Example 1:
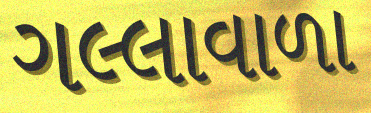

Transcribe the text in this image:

ગલ્લાવાળા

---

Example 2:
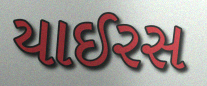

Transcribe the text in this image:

યાઈરસ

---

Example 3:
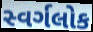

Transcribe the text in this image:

સ્વર્ગલોક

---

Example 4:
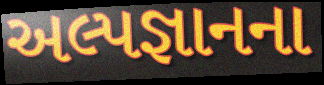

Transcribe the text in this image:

અલ્પજ્ઞાનના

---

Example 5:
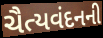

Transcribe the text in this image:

ચૈત્યવંદનની